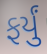
ફર્યું